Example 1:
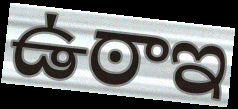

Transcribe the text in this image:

ఉఠాఇ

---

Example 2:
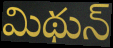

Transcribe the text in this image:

మిథున్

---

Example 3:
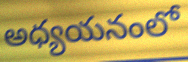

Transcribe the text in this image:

అధ్యయనంలో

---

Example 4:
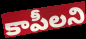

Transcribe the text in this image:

కాపీలని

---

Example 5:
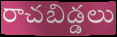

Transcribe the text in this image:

రాచబిడ్డలు